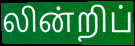
லின்றிப்